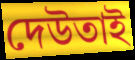
দেউতাই